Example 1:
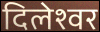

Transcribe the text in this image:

दिलेश्वर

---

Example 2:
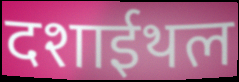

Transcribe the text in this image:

दशाईथल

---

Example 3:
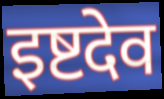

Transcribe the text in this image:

इष्टदेव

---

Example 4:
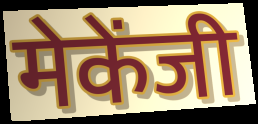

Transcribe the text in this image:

मेकेंजी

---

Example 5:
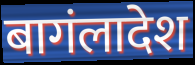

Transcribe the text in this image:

बागंलादेश